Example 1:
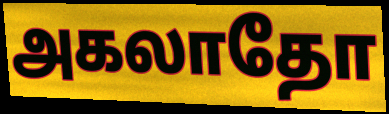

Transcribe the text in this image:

அகலாதோ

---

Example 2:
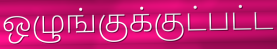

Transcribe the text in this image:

ஒழுங்குக்குட்பட்ட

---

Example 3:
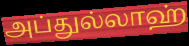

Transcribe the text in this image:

அப்துல்லாஹ்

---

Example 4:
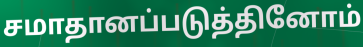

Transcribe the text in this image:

சமாதானப்படுத்தினோம்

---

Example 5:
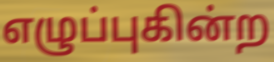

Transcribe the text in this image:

எழுப்புகின்ற